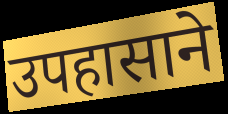
उपहासाने